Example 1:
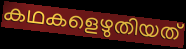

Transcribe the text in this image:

കഥകളെഴുതിയത്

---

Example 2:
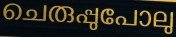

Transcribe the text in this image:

ചെരുപ്പുപോലു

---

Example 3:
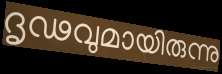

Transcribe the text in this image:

ദൃഢവുമായിരുന്നു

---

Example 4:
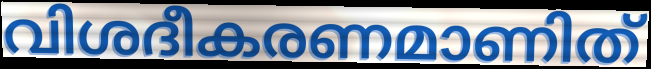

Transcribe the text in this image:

വിശദീകരണമാണിത്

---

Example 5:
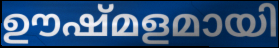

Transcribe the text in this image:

ഊഷ്മളമായി